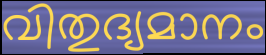
വിതുദ്യമാനം